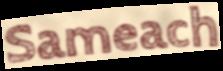
Sameach